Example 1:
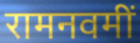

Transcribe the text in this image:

रामनवमीं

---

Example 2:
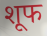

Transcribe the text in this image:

शूफ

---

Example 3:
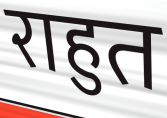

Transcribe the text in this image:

राहुत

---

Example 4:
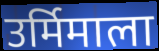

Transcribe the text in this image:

उर्मिमाला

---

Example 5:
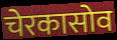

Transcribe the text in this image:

चेरकासोव